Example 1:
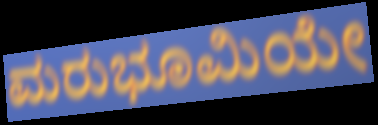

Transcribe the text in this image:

ಮರುಭೂಮಿಯೇ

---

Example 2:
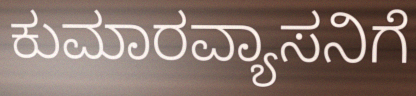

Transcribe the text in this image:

ಕುಮಾರವ್ಯಾಸನಿಗೆ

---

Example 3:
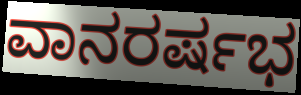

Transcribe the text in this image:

ವಾನರರ್ಷಭ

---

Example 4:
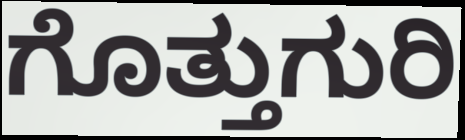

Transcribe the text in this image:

ಗೊತ್ತುಗುರಿ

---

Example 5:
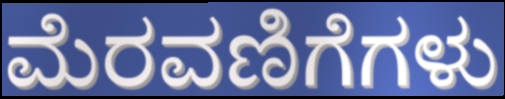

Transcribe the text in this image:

ಮೆರವಣಿಗೆಗಳು